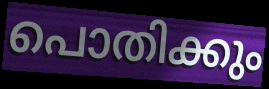
പൊതിക്കും